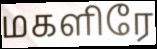
மகளிரே